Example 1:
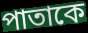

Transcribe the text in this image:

পাতাকে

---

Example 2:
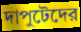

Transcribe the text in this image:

দাপুটেদের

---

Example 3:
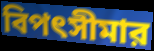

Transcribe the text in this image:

বিপৎসীমার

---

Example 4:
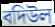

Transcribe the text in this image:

বদিউল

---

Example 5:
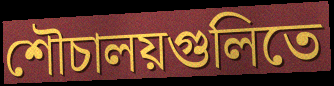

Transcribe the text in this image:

শৌচালয়গুলিতে